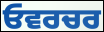
ਓਵਰਚਰ